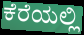
ಕೆರೆಯಲ್ಲಿ